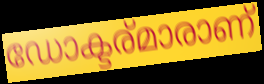
ഡോക്ടര്മാരാണ്